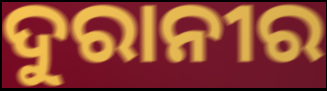
ଦୁରାନୀର